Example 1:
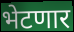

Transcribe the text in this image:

भेटणार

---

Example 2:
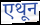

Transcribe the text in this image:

एथून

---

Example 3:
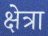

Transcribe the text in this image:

क्षेत्रा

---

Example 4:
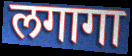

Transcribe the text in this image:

लगागा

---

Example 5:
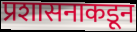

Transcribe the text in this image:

प्रशासनाकडून